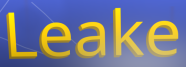
Leake